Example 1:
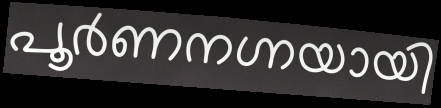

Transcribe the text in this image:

പൂർണനഗ്നയായി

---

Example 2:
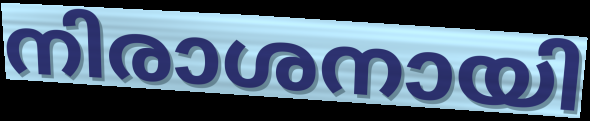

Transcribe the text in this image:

നിരാശനായി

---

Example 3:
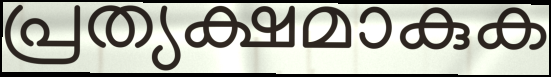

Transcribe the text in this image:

പ്രത്യക്ഷമാകുക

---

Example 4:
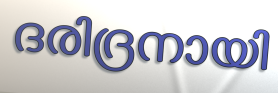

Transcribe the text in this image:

ദരിദ്രനായി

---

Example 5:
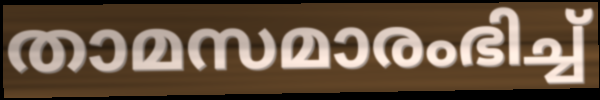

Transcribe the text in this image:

താമസമാരംഭിച്ച്